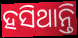
ହସିଥାନ୍ତି